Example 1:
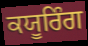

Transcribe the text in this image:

ਕਯੂਰਿੰਗ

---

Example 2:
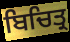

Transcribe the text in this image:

ਬਿਚਿਤ੍ਰ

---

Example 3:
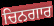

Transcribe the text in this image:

ਚਿਨਗਾਰ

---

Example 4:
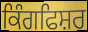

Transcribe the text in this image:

ਕਿੰਗਫਿਸ਼ਰ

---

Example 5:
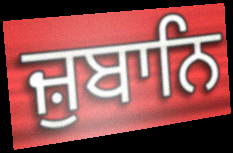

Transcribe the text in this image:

ਜ਼ੁਬਾਨਿ